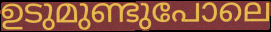
ഉടുമുണ്ടുപോലെ